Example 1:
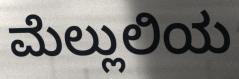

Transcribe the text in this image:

ಮೆಲ್ಲುಲಿಯ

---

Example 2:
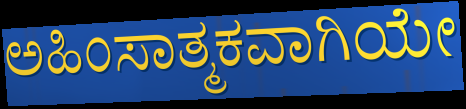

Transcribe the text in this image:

ಅಹಿಂಸಾತ್ಮಕವಾಗಿಯೇ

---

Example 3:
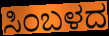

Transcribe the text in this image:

ಸಿಂಬಳದ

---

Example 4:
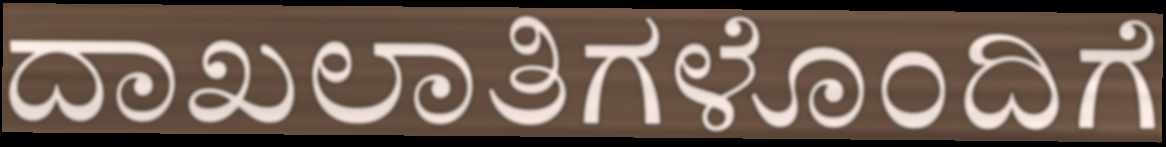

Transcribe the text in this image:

ದಾಖಲಾತಿಗಳೊಂದಿಗೆ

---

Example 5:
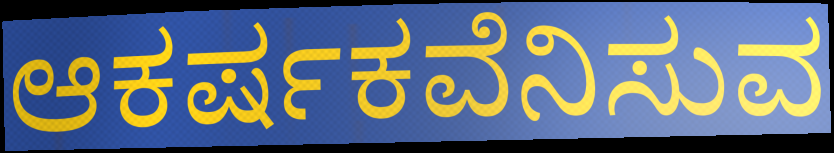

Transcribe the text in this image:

ಆಕರ್ಷಕವೆನಿಸುವ